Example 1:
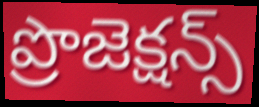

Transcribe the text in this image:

ప్రొజెక్షన్స్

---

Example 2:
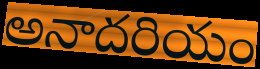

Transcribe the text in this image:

అనాదరియం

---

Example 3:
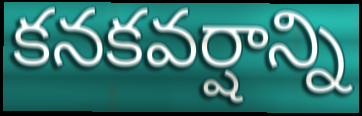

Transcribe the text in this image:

కనకవర్షాన్ని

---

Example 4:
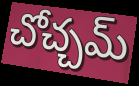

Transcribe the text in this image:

చోచ్చమ్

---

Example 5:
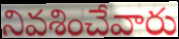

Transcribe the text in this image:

నివశించేవారు